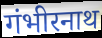
गंभीरनाथ